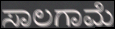
ಸಾಲಗಾಮೆ